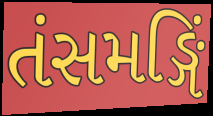
તંસમઙ્ગિં